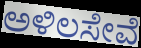
ಅಳಿಲಸೇವೆ